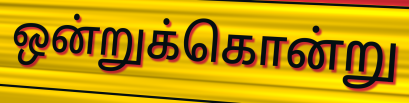
ஒன்றுக்கொன்று